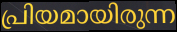
പ്രിയമായിരുന്ന